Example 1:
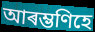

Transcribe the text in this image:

আৰম্ভণিহে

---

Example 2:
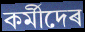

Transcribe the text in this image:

কৰ্মীদেৰ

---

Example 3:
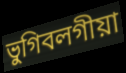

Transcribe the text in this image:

ভুগিবলগীয়া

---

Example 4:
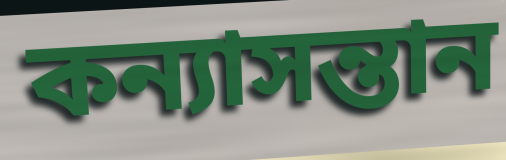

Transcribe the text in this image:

কন্যাসন্তান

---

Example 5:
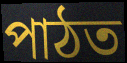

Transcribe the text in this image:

পাঠত